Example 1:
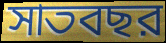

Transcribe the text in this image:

সাতবছর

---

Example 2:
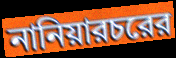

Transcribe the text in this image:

নানিয়ারচরের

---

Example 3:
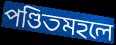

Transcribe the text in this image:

পণ্ডিতমহলে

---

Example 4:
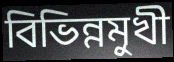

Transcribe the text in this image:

বিভিন্নমুখী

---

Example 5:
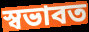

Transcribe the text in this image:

স্বভাবত